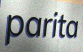
parita